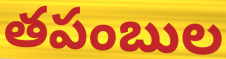
తపంబుల